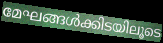
മേഘങ്ങൾക്കിടയിലൂടെ